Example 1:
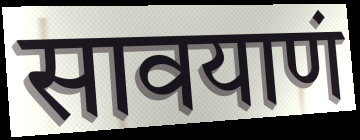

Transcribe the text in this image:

सावयाणं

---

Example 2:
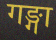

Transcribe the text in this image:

गङ्गा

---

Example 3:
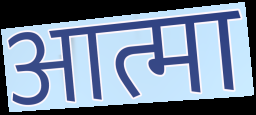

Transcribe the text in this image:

आत्मा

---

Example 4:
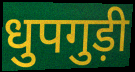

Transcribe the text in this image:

धुपगुड़ी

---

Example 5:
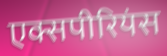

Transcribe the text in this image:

एक्सपीरियंस